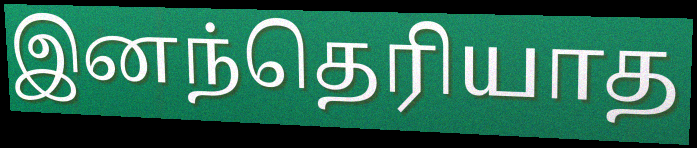
இனந்தெரியாத